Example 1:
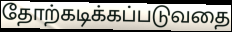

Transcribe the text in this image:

தோற்கடிக்கப்படுவதை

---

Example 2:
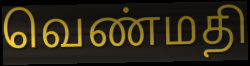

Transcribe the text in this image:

வெண்மதி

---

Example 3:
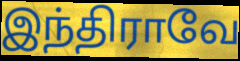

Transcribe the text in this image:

இந்திராவே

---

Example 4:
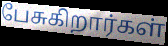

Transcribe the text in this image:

பேசுகிறார்கள்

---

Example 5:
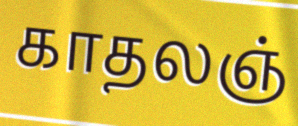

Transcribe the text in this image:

காதலஞ்